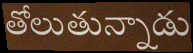
తోలుతున్నాడు